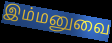
இம்மனுவை